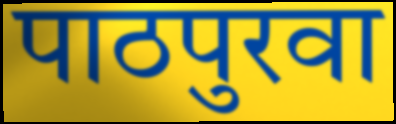
पाठपुरवा